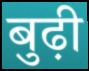
बुढ़ी